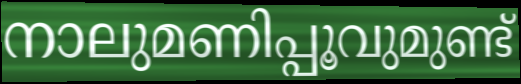
നാലുമണിപ്പൂവുമുണ്ട്